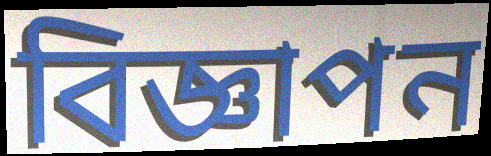
বিজ্ঞাপন